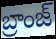
బ్రాంజ్